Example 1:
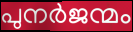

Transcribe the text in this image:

പുനർജന്മം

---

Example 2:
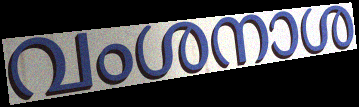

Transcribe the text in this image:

വംശനാശ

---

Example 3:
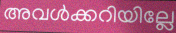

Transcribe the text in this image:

അവൾക്കറിയില്ലേ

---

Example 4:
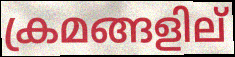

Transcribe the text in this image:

ക്രമങ്ങളില്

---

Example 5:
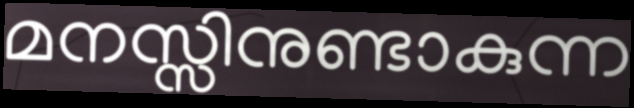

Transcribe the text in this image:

മനസ്സിനുണ്ടാകുന്ന